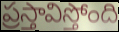
ప్రస్తావిస్తోంది